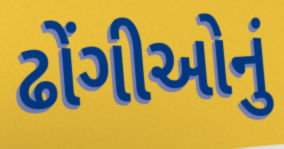
ઢોંગીઓનું